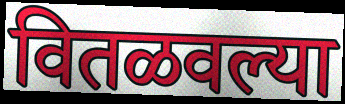
वितळवल्या